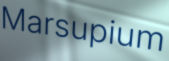
Marsupium